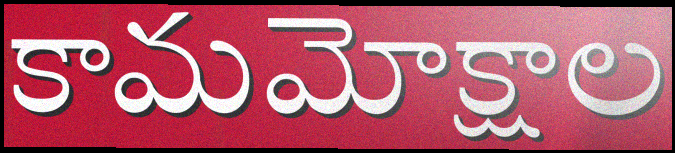
కామమోక్షాల